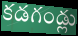
కడగండ్లు